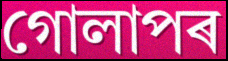
গোলাপৰ